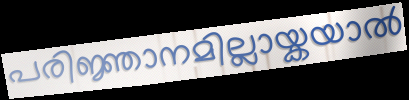
പരിജ്ഞാനമില്ലായ്കയാൽ